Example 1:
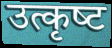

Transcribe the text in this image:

उत्कृष्‍ट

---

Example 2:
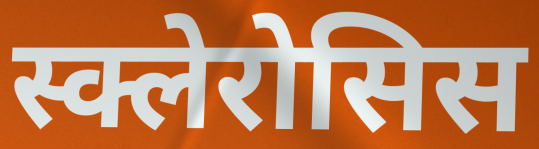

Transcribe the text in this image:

स्क्लेरोसिस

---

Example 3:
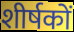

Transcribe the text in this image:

शीर्षकों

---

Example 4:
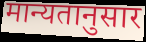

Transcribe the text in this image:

मान्यतानुसार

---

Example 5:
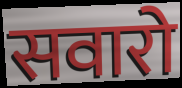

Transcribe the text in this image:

सवारो